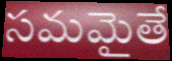
సమమైతే